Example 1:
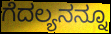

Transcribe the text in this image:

ಗೆದಲ್ಯನನ್ನೂ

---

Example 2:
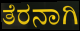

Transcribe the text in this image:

ತೆರನಾಗಿ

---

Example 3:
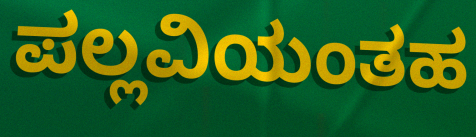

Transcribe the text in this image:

ಪಲ್ಲವಿಯಂತಹ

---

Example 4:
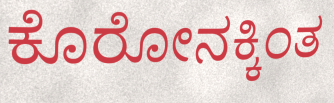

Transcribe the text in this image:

ಕೊರೋನಕ್ಕಿಂತ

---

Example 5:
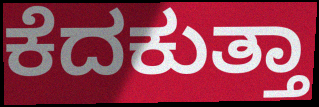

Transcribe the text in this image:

ಕೆದಕುತ್ತಾ